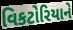
વિકટોરિયાને